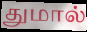
துமால்